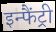
इन्फैंट्री